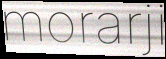
morarji